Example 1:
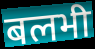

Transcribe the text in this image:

बलभी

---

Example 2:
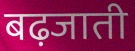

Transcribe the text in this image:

बढ़जाती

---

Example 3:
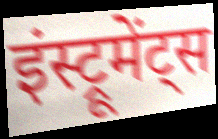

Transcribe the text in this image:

इंस्ट्रूमेंट्स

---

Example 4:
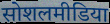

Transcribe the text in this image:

सोशलमीडिया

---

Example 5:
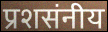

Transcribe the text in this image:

प्रशसंनीय